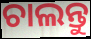
ଚାଲନ୍ତୁ